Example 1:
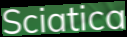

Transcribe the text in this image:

Sciatica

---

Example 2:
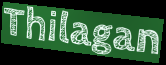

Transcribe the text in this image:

Thilagan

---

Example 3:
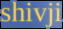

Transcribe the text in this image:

shivji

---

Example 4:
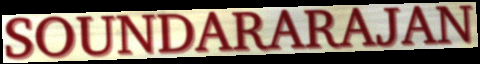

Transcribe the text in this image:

SOUNDARARAJAN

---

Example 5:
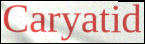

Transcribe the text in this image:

Caryatid